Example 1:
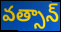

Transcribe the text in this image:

వత్సాన్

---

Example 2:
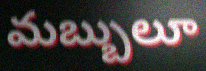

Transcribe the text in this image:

మబ్బులూ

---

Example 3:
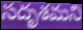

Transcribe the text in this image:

సదృశమని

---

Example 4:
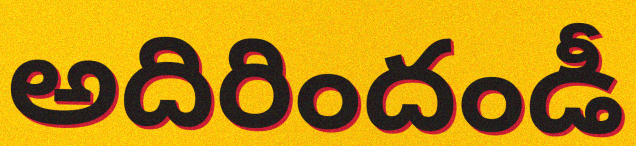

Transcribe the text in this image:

అదిరిందండీ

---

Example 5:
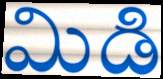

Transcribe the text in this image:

మిడి